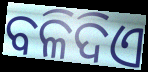
ବଳିଦିଏ